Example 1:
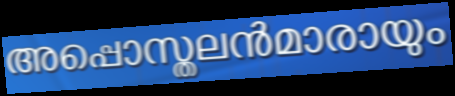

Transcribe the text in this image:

അപ്പൊസ്തലൻമാരായും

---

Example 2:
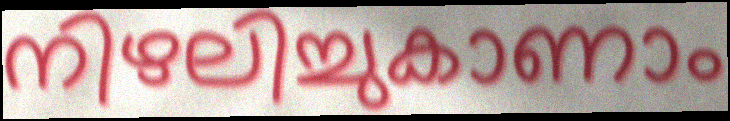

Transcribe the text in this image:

നിഴലിച്ചുകാണാം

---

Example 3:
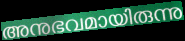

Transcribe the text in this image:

അനുഭവമായിരുന്നു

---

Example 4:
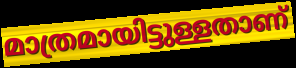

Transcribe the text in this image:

മാത്രമായിട്ടുള്ളതാണ്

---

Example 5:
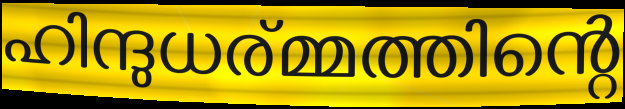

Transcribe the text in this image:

ഹിന്ദുധര്മ്മത്തിന്റെ